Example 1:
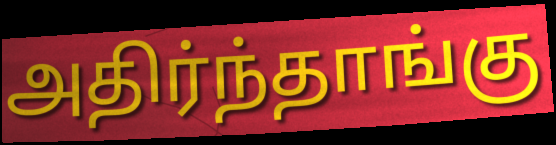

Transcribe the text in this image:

அதிர்ந்தாங்கு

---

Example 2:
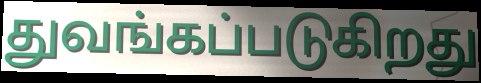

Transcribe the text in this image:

துவங்கப்படுகிறது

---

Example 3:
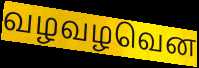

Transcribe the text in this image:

வழவழவென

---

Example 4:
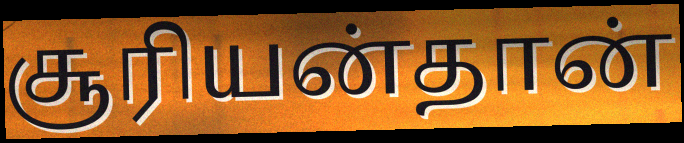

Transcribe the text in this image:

சூரியன்தான்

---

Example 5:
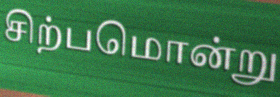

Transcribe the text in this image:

சிற்பமொன்று